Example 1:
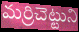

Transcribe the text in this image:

మర్రిచెట్టుని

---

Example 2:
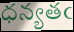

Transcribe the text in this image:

ధన్యతఁ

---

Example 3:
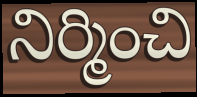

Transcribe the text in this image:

నిర్మించి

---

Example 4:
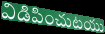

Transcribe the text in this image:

విడిపించుటయు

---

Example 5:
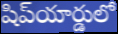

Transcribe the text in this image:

షిప్‌యార్డులో